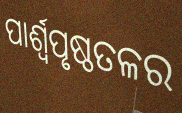
ପାର୍ଶ୍ଵପୃଷ୍ଠତଳର